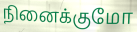
நினைக்குமோ